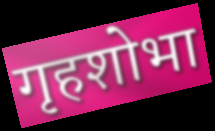
गृहशोभा